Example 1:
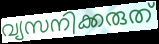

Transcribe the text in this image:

വ്യസനിക്കരുത്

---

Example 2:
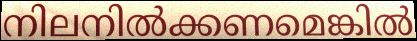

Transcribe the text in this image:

നിലനിൽക്കണമെങ്കിൽ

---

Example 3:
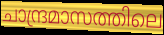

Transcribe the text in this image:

ചാന്ദ്രമാസത്തിലെ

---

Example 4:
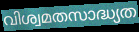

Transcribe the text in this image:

വിശ്വമതസാദ്ധ്യത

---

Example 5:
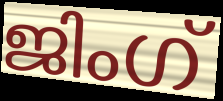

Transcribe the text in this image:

ജിംഗ്